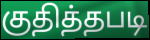
குதித்தபடி